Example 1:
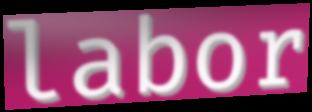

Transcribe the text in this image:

labor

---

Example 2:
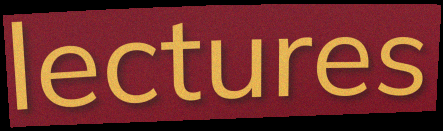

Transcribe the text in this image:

lectures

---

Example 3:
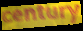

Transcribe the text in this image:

century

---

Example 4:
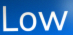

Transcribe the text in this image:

Low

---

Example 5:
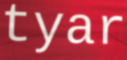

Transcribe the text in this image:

tyar